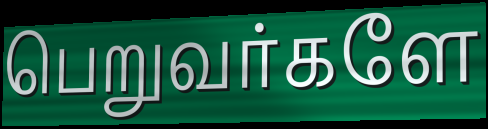
பெறுவர்களே